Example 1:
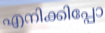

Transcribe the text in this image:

എനിക്കിപ്പോ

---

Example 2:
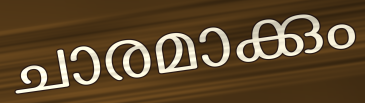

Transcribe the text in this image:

ചാരമാക്കും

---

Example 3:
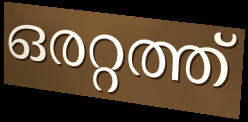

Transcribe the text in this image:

ഒരറ്റത്ത്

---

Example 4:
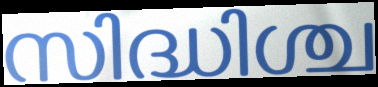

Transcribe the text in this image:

സിദ്ധിശ്ച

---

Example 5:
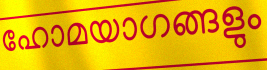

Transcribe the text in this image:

ഹോമയാഗങ്ങളും